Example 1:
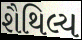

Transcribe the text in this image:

શૈથિલ્ય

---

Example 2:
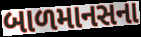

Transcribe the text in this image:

બાળમાનસના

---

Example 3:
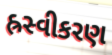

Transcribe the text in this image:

હ્રસ્વીકરણ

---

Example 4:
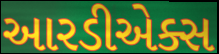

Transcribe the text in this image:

આરડીએક્સ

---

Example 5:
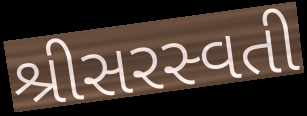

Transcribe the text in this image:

શ્રીસરસ્વતી